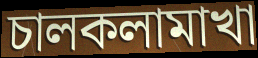
চালকলামাখা